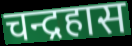
चन्द्रहास